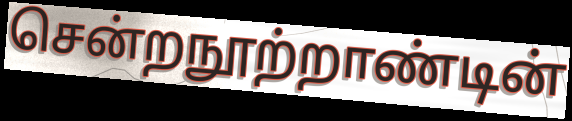
சென்றநூற்றாண்டின்